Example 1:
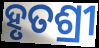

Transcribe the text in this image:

ହୃତଶ୍ରୀ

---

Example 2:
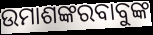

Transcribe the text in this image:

ଉମାଶଙ୍କରବାବୁଙ୍କ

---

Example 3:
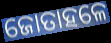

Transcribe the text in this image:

ଜୋତାହଳେ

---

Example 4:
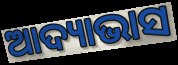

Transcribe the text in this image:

ଆଦ୍ୟାଭାସ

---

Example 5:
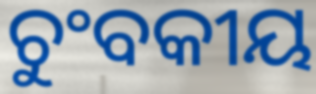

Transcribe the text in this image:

ଚୁଂବକୀୟ